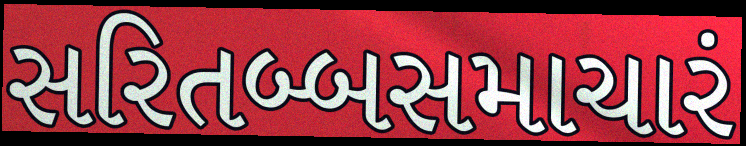
સરિતબ્બસમાચારં